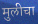
मुलीचा